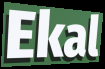
Ekal